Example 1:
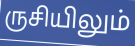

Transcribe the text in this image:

ருசியிலும்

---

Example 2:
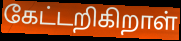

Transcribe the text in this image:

கேட்டறிகிறாள்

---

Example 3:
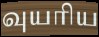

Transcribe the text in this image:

வுயரிய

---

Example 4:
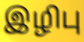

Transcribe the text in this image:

இழிபு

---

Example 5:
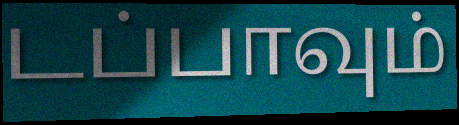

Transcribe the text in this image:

டப்பாவும்